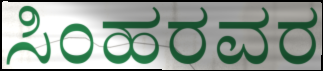
ಸಿಂಹರವರ